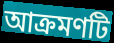
আক্রমণটি